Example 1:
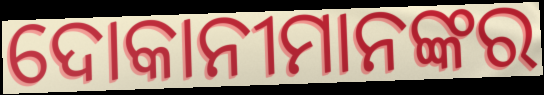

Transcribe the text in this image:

ଦୋକାନୀମାନଙ୍କର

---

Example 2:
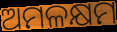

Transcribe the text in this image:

ଅମଳକ୍ଷମ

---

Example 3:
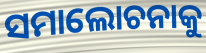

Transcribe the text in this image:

ସମାଲୋଚନାକୁ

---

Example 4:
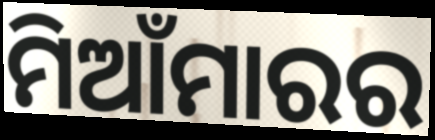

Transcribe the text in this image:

ମିଆଁମାରର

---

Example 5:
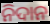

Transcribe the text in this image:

ନିଦାନ